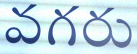
వగరు